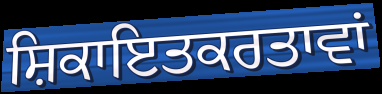
ਸ਼ਿਕਾਇਤਕਰਤਾਵਾਂ